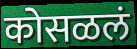
कोसळलं